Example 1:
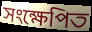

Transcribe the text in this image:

সংক্ষেপিত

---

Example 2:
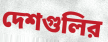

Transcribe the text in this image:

দেশগুলির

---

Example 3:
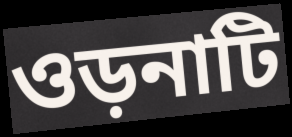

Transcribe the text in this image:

ওড়নাটি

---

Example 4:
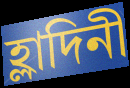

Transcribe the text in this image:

হ্লাদিনী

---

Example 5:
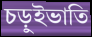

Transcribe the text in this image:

চড়ুইভাতি